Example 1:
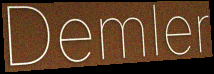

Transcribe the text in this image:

Demler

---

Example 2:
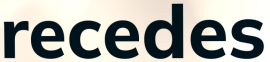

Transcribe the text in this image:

recedes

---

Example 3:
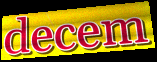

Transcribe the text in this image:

decem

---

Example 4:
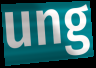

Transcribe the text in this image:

ung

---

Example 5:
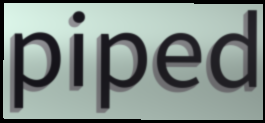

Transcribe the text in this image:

piped